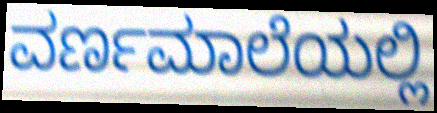
ವರ್ಣಮಾಲೆಯಲ್ಲಿ